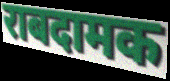
राबदामक